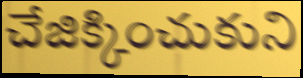
చేజిక్కించుకుని